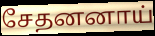
சேதனனாய்